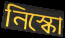
নিস্কো